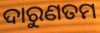
ଦାରୁଣତମ